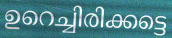
ഉറെച്ചിരിക്കട്ടെ